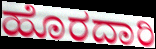
ಹೊರದಾರಿ